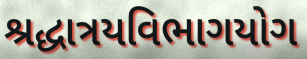
શ્રદ્ધાત્રયવિભાગયોગ